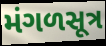
મંગળસૂત્ર